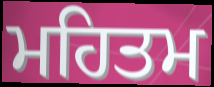
ਮਹਿਤਮ